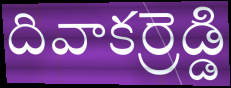
దివాకర్రెడ్డి